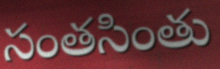
సంతసింతు